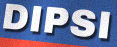
DIPSI